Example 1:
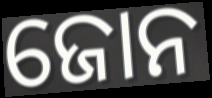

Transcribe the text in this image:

ଜୋନ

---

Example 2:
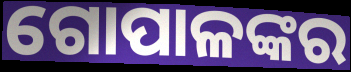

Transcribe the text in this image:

ଗୋପାଳଙ୍କର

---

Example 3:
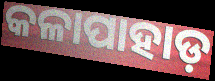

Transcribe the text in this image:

କଳାପାହାଡ଼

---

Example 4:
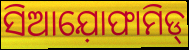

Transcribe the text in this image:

ସିଆଯ଼ୋଫାମିଡ୍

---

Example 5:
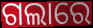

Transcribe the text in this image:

ଗଲାରେ